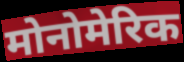
मोनोमेरिक